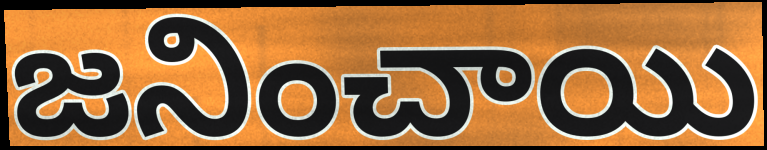
జనించాయి